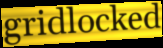
gridlocked